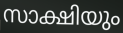
സാക്ഷിയും